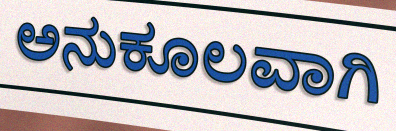
ಅನುಕೂಲವಾಗಿ